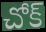
చోక్